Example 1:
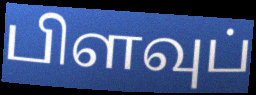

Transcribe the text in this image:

பிளவுப்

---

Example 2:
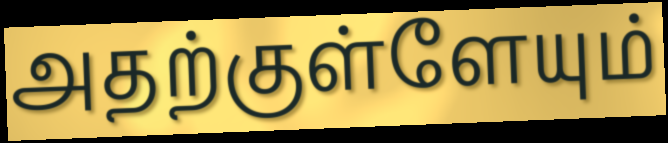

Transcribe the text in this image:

அதற்குள்ளேயும்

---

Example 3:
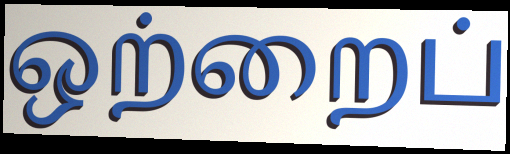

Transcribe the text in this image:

ஒற்றைப்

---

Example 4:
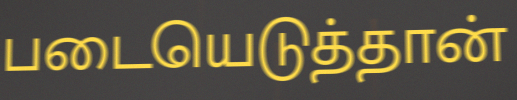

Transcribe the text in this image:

படையெடுத்தான்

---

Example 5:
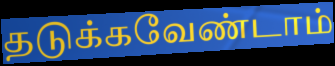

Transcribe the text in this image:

தடுக்கவேண்டாம்